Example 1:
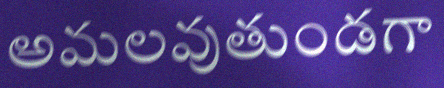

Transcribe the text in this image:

అమలవుతుండగా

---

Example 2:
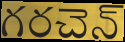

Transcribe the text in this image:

గరచెన్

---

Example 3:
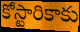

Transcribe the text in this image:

కోస్టారికాకు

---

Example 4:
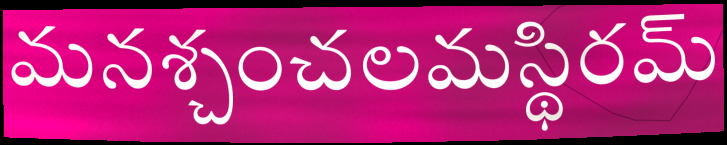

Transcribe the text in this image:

మనశ్చంచలమస్థిరమ్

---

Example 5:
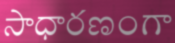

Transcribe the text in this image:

సాధారణంగా